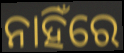
ନାହିଁରେ